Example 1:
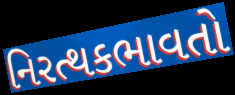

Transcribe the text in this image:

નિરત્થકભાવતો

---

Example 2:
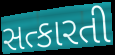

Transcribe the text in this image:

સત્કારતી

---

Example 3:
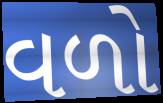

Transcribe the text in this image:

વળો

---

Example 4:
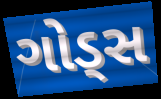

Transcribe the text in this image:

ગોડ્સ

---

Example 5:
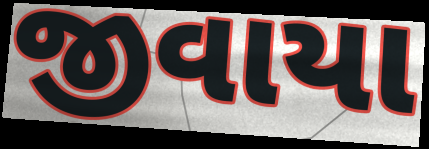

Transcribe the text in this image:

જીવાયા